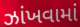
ઝાંખવામાં